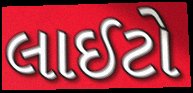
લાઈટો